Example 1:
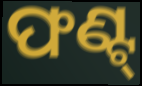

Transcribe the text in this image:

ଫଣ୍ଟ୍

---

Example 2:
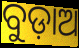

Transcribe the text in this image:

ବୁଡ଼ାଅ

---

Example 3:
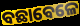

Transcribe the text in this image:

ବଛାବେଳେ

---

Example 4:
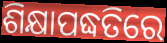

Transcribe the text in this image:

ଶିକ୍ଷାପଦ୍ଧତିରେ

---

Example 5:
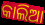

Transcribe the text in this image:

କାଲିଆ